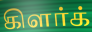
கிளர்க்